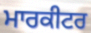
ਮਾਰਕੀਟਰ